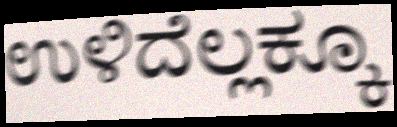
ಉಳಿದೆಲ್ಲಕ್ಕೂ